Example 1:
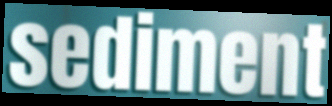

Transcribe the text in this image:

sediment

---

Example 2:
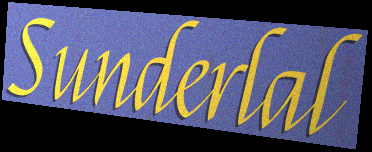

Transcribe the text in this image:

Sunderlal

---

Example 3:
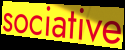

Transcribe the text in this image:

sociative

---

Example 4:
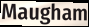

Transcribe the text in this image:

Maugham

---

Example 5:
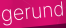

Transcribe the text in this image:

gerund